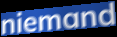
niemand